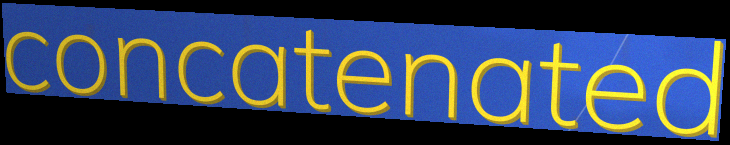
concatenated